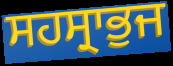
ਸਹਸ੍ਰਾਭੁਜ